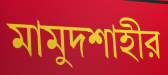
মামুদশাহীর